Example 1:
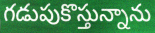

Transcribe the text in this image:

గడుపుకొస్తున్నాను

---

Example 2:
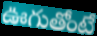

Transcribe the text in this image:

ఊగుతోంటే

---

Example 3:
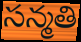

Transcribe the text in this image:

సన్మతి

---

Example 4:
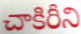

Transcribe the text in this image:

చాకిరీని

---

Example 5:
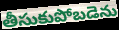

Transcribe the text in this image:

తీసుకుపోబడెను